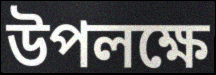
উপলক্ষে